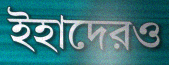
ইহাদেরও